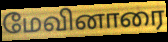
மேவினாரை